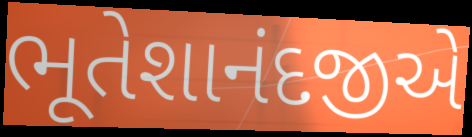
ભૂતેશાનંદજીએ